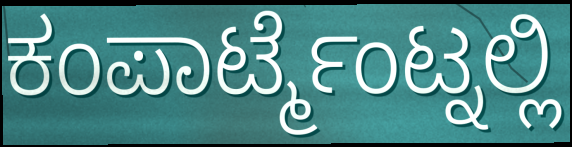
ಕಂಪಾರ್ಟ್ಮೆಂಟ್ನಲ್ಲಿ